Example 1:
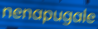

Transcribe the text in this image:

nenapugale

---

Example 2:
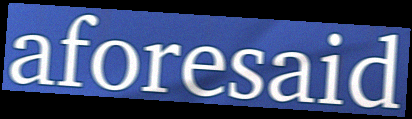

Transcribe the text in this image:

aforesaid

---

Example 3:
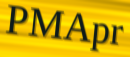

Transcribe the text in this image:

PMApr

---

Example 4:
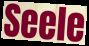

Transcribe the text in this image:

Seele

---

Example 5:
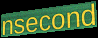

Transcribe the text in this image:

nsecond